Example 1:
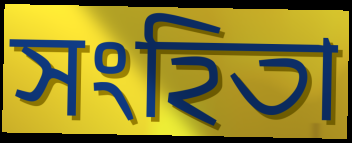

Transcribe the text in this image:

সংহিতা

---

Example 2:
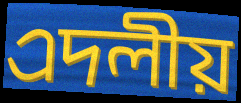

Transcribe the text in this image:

এদলীয়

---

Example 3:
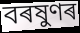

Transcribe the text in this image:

বৰষুণৰ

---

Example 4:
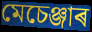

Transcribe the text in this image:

মেচেঞ্জাৰ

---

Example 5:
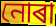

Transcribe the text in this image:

নোৰা